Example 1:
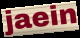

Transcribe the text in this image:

jaein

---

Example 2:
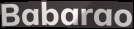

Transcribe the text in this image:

Babarao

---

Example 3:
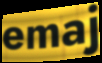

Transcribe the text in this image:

emaj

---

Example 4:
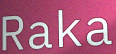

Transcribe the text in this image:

Raka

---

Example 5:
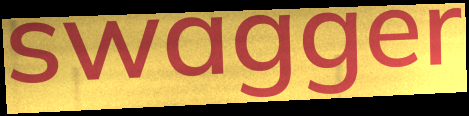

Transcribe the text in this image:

swagger